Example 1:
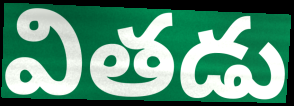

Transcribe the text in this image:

వితడు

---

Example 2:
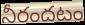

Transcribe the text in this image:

నీరందటం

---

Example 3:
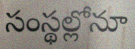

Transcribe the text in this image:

సంస్థల్లోనూ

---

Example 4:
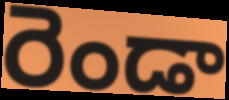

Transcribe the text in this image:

రెండా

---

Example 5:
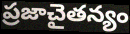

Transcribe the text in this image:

ప్రజాచైతన్యం